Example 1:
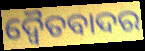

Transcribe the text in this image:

ଦ୍ୱୈତବାଦର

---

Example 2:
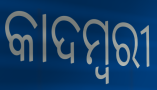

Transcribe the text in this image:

କାଦମ୍ବରୀ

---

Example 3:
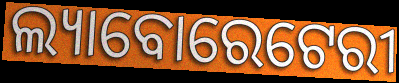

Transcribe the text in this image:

ଲ୍ୟାବୋରେଟେରୀ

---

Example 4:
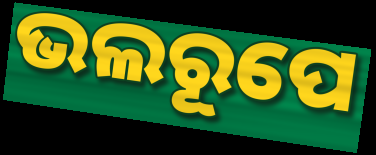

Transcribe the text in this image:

ଭଲରୂପେ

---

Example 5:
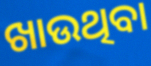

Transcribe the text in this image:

ଖାଉଥିବା